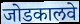
जोडकालवे